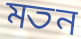
মতন